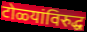
टोळ्यांविरुद्ध